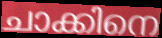
ചാക്കിനെ